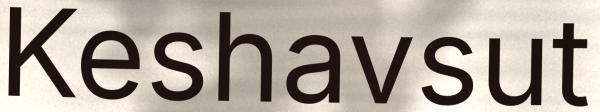
Keshavsut